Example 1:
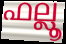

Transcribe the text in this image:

ഫല്ലൂ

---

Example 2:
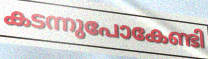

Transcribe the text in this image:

കടന്നുപോകേണ്ടി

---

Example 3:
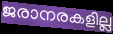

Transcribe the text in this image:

ജരാനരകളില്ല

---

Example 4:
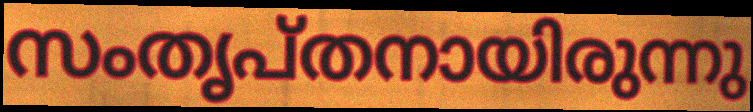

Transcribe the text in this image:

സംതൃപ്തനായിരുന്നു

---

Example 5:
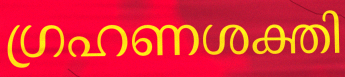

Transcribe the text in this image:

ഗ്രഹണശക്തി